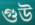
গুউ